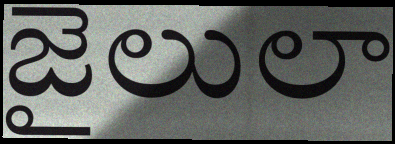
జైలులా